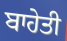
ਬਾਹੇਤੀ